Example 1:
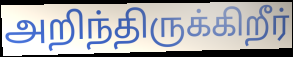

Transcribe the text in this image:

அறிந்திருக்கிறீர்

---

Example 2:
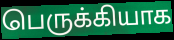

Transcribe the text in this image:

பெருக்கியாக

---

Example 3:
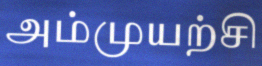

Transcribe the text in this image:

அம்முயற்சி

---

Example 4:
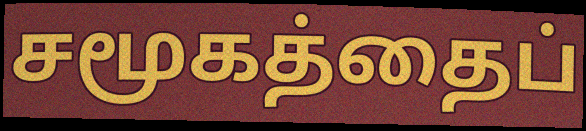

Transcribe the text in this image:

சமூகத்தைப்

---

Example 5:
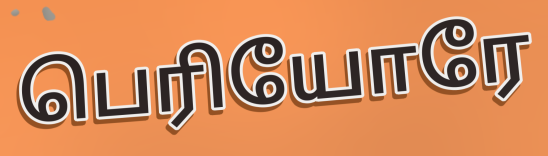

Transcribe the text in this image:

பெரியோரே